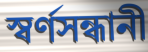
স্বর্ণসন্ধানী